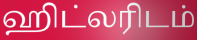
ஹிட்லரிடம்